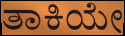
ತಾಕಿಯೇ